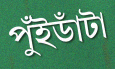
পুঁইডাঁটা